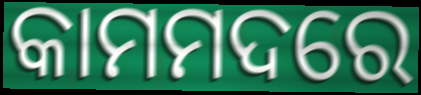
କାମମଦରେ